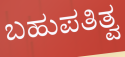
ಬಹುಪತಿತ್ವ